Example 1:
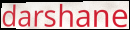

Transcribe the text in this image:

darshane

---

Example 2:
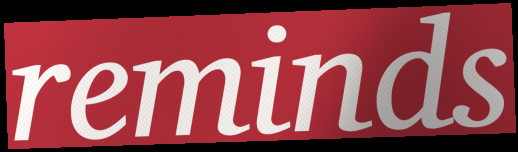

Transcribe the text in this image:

reminds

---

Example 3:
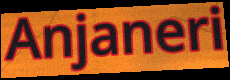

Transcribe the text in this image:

Anjaneri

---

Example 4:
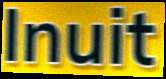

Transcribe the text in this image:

Inuit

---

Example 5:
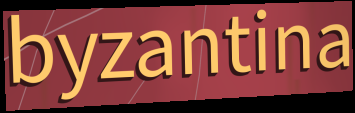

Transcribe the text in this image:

byzantina